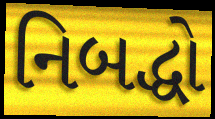
નિબદ્ધો